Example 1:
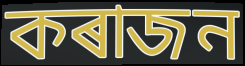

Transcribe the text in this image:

কৰাজন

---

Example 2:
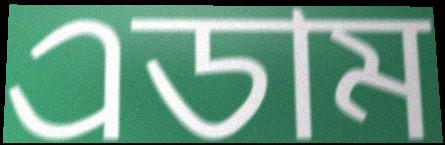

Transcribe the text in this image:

এডাম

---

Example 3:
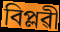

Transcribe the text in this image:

বিপ্লৱী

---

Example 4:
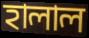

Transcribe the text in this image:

হালাল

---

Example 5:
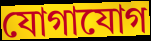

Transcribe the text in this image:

যোগাযোগ